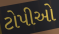
ટોપીઓ